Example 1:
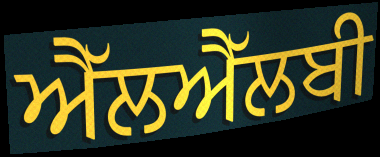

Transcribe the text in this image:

ਐੱਲਐੱਲਬੀ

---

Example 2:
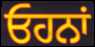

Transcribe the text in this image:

ਓਹਨਾਂ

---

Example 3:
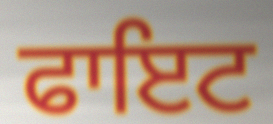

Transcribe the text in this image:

ਫਾਇਟ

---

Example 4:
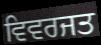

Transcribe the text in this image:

ਵਿਵਰਜਤ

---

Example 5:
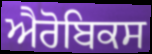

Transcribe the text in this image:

ਐਰੋਬਿਕਸ